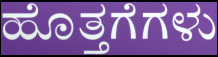
ಹೊತ್ತಗೆಗಳು